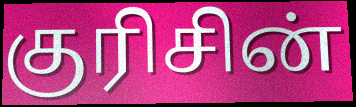
குரிசின்